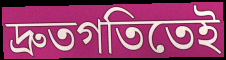
দ্রুতগতিতেই